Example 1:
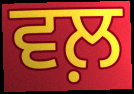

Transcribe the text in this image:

ਵਲ਼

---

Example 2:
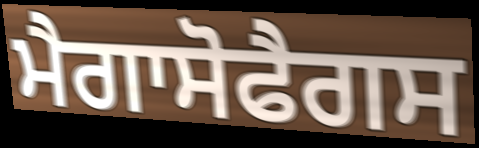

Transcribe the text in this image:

ਮੈਗਾਸੋਫੈਗਸ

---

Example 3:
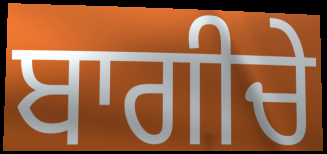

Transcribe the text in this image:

ਬਾਗੀਚੇ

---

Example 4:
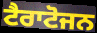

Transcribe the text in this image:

ਟੈਰਾਟੋਜਨ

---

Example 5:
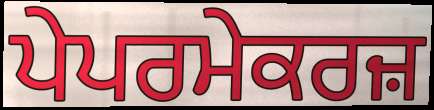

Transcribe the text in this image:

ਪੇਪਰਮੇਕਰਜ਼